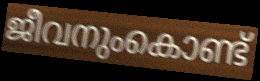
ജീവനുംകൊണ്ട്